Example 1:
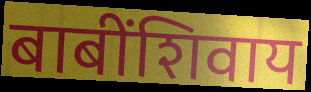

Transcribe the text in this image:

बाबींशिवाय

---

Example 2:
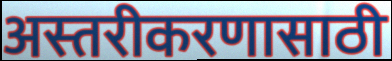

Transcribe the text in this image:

अस्तरीकरणासाठी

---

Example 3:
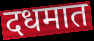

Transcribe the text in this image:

दधमात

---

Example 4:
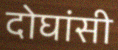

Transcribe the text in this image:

दोघांसी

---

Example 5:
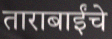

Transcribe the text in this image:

ताराबाईंचे